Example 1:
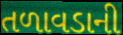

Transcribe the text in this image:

તળાવડાની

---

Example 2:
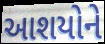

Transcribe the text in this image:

આશયોને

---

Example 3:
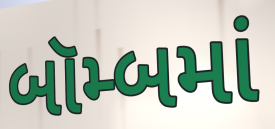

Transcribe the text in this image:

બૉમ્બમાં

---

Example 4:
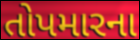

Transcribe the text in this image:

તોપમારના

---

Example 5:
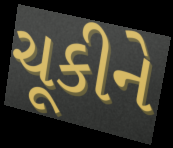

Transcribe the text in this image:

ચૂકીને